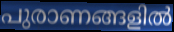
പുരാണങ്ങളിൽ